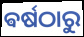
ଵର୍ଷଠାରୁ